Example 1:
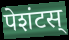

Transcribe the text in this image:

पेशंटस्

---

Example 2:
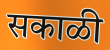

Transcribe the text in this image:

सकाळी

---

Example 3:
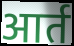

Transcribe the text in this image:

आर्त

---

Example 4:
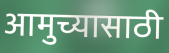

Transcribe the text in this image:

आमुच्यासाठी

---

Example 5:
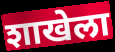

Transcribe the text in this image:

शाखेला